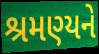
શ્રમણ્યને